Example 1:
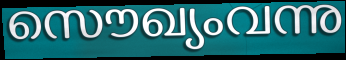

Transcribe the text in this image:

സൌഖ്യംവന്നു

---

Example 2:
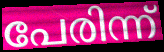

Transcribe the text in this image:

പേരിന്ന്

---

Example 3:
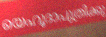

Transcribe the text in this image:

യെഹൂദാപുത്രിക്കു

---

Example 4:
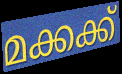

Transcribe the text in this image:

മക്കക്ക്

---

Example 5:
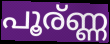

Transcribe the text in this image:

പൂര്ണ്ണ